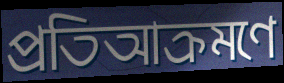
প্রতিআক্রমণে